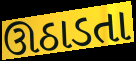
ઊઠાડતા